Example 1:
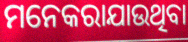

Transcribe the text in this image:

ମନେକରାଯାଉଥିବା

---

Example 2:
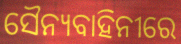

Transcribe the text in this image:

ସୈନ୍ୟବାହିନୀରେ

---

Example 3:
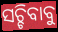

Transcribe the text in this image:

ସଚ୍ଚିବାବୁ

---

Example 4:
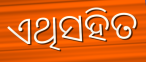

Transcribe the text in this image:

ଏଥିସହିତ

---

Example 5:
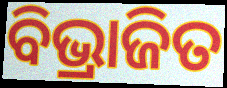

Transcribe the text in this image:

ବିଭ୍ରାଜିତ